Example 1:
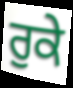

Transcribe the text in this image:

ਰੁਕੇ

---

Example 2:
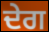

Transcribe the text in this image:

ਦੇਗ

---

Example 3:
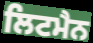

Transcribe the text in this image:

ਲਿਟਮੈਨ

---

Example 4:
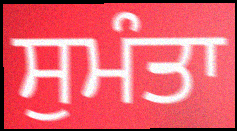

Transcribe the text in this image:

ਸੁਮੰਤਾ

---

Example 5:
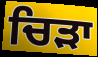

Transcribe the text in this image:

ਚਿੜਾ